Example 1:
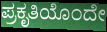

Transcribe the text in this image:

ಪ್ರಕೃತಿಯೊಂದೇ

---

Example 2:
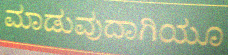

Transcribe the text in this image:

ಮಾಡುವುದಾಗಿಯೂ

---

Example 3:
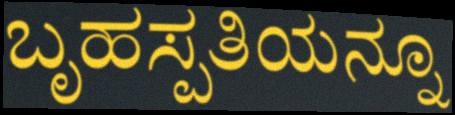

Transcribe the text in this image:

ಬೃಹಸ್ಪತಿಯನ್ನೂ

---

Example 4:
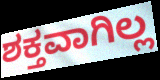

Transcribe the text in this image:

ಶಕ್ತವಾಗಿಲ್ಲ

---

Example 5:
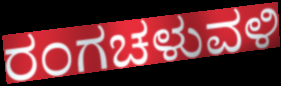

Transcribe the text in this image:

ರಂಗಚಳುವಳಿ